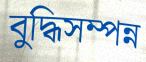
বুদ্ধিসম্পন্ন